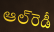
ఆల్‌రెడీ